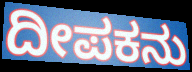
ದೀಪಕನು